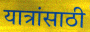
यात्रांसाठी